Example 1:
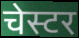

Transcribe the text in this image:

चेस्टर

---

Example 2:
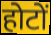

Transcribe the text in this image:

होटों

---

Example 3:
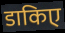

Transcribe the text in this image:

डाकिए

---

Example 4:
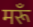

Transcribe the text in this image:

मरूँ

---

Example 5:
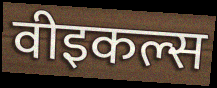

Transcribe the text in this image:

वीइकल्‍स